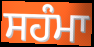
ਸਹੰਮਾ